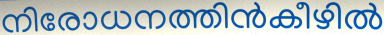
നിരോധനത്തിൻകീഴിൽ